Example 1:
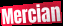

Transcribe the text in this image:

Mercian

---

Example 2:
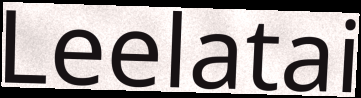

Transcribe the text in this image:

Leelatai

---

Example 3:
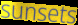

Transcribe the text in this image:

sunsets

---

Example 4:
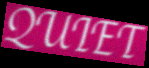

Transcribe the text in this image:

QUIET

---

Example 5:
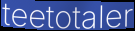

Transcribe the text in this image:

teetotaler